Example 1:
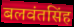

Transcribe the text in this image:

बलवंतसिंह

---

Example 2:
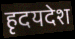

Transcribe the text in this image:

हृदयदेश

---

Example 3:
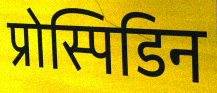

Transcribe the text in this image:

प्रोस्पिडिन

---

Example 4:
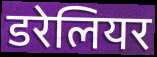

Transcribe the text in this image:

डरेलियर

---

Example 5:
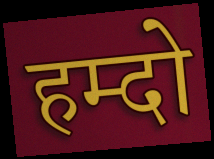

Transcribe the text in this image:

हम्दो